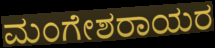
ಮಂಗೇಶರಾಯರ